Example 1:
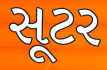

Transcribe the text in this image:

સૂટર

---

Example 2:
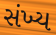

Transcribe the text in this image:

સંખ્ય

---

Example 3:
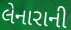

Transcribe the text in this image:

લેનારાની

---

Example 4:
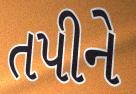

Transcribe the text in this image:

તપીને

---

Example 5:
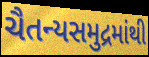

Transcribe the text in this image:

ચૈતન્યસમુદ્રમાંથી